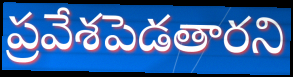
ప్రవేశపెడతారని